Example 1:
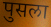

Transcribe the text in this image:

पुसला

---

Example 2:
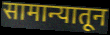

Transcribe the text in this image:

सामान्यातून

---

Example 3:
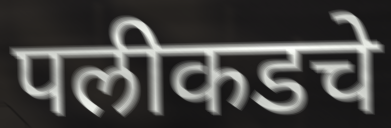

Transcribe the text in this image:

पलीकडचे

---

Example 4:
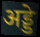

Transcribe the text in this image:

अड्डे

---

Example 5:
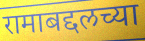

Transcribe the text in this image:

रामाबद्दलच्या